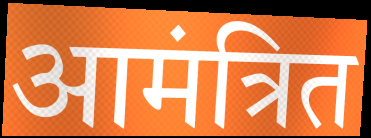
आमंत्रित